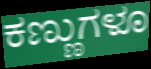
ಕಣ್ಣುಗಳೂ